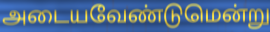
அடையவேண்டுமென்று